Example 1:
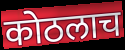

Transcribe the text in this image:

कोठलाच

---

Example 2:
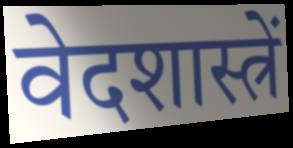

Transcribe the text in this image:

वेदशास्त्रें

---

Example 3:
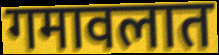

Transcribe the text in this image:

गमावलात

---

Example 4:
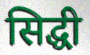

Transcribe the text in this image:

सिद्धी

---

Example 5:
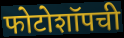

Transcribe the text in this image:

फोटोशॉपची